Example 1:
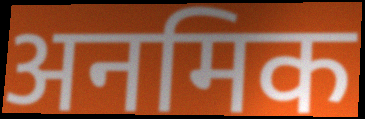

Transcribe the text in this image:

अनमिक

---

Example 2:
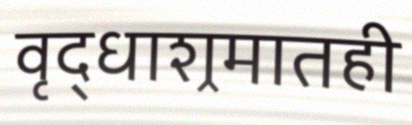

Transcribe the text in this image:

वृद्धाश्रमातही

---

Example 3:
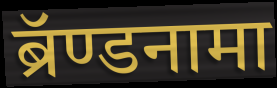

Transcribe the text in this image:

ब्रॅण्डनामा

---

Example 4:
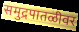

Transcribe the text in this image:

समुद्रपातळीवर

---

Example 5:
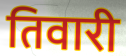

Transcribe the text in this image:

तिवारी